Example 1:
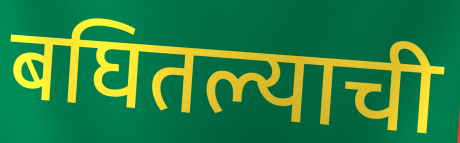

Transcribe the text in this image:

बघितल्याची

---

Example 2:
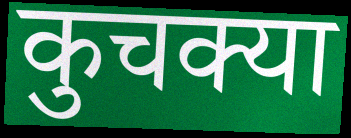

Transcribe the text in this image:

कुचक्या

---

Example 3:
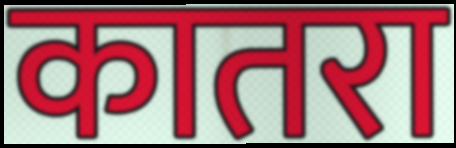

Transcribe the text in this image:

कातरा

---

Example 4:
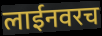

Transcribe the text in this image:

लाईनवरच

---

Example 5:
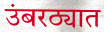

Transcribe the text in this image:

उंबरठ्यात